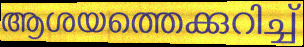
ആശയത്തെക്കുറിച്ച്